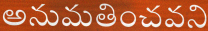
అనుమతించవని